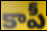
కాపీ